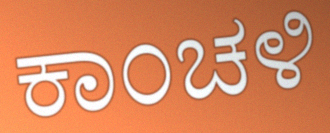
ಕಾಂಚಳಿ